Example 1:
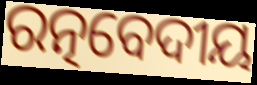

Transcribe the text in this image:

ରତ୍ନବେଦୀୟ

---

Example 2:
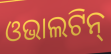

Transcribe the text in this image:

ଓଭାଲଟିନ୍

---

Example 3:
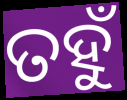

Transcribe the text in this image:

ତହୁଁ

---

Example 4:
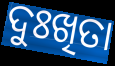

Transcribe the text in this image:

ଦୁଃଖିତା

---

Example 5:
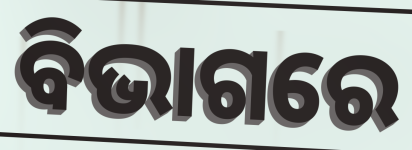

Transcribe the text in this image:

ବିଭାଗରେ